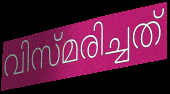
വിസ്മരിച്ചത്